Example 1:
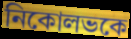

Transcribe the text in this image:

নিকোলভকে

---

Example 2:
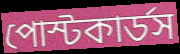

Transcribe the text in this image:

পোস্টকার্ডস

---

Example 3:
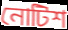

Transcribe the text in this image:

নোটিশ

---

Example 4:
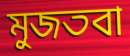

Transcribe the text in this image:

মুজতবা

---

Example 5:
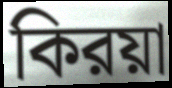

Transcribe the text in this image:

কিরয়া